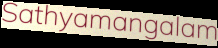
Sathyamangalam